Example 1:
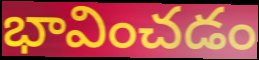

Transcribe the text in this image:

భావించడం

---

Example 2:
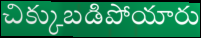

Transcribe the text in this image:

చిక్కుబడిపోయారు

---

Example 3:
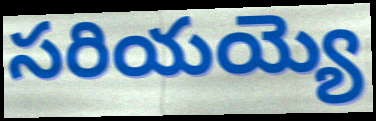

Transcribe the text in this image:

సరియయ్యె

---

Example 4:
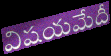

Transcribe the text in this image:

విషయమేదీ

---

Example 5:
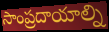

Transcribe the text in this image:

సాంప్రదాయాల్ని